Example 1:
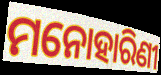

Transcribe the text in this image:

ମନୋହାରିଣୀ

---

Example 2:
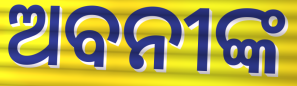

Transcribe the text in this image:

ଅବନୀଙ୍କ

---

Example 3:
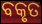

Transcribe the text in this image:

ବକୃତ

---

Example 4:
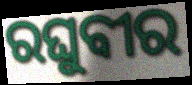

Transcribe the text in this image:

ରଘୁବୀର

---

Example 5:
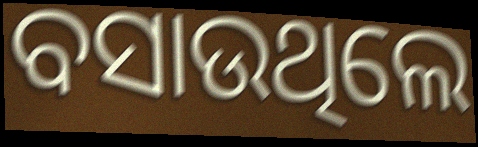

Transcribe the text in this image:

ବସାଉଥିଲେ